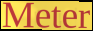
Meter